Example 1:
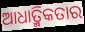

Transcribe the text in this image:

ଆଧାତ୍ମିକତାର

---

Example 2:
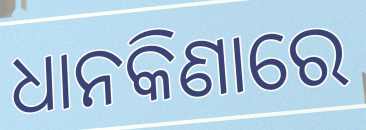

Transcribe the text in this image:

ଧାନକିଣାରେ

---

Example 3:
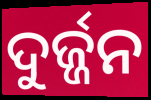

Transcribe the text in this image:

ଦୁର୍ଜ୍ଜନ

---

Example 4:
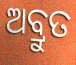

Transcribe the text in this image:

ଅବ୍ରୁତ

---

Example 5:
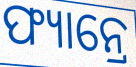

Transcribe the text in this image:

ଫ୍ୟାନ୍ରେ